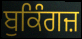
ਬੁਕਿੰਗਜ਼